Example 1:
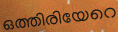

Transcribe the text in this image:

ഒത്തിരിയേറെ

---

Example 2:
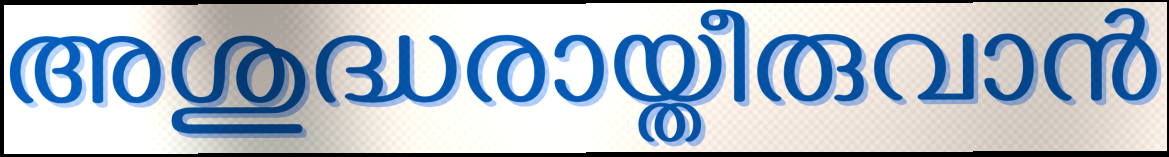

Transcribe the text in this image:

അശുദ്ധരായ്തീരുവാൻ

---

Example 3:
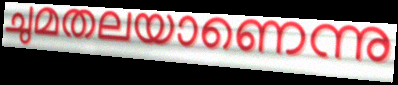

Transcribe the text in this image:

ചുമതലയാണെന്നു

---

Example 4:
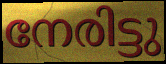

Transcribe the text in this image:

നേരിട്ടു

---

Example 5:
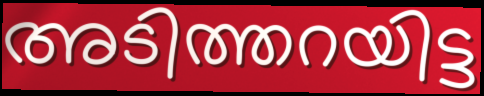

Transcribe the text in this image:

അടിത്തറയിട്ട